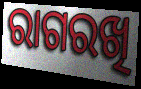
ରାଗରଖି